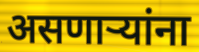
असणाऱ्यांना